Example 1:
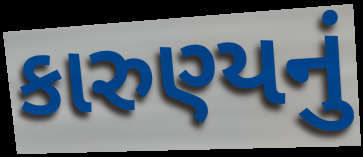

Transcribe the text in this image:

કારુણ્યનું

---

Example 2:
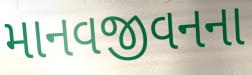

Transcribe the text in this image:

માનવજીવનના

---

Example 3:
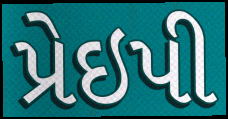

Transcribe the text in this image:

પ્રેઇપી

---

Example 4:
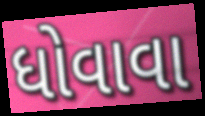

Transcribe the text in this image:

ધોવાવા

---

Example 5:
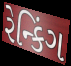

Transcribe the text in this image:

રેન્કિંગ